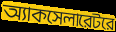
অ্যাকসেলারেটরে